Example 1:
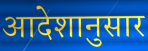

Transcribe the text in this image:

आदेशानुसार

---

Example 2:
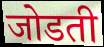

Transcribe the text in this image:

जोडती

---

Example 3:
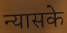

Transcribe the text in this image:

न्यासके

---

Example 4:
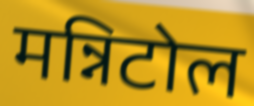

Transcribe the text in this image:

मन्निटोल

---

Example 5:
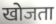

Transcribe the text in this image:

खोजता